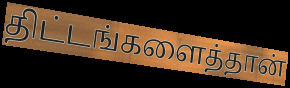
திட்டங்களைத்தான்